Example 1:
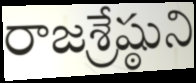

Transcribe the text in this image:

రాజశ్రేష్ఠుని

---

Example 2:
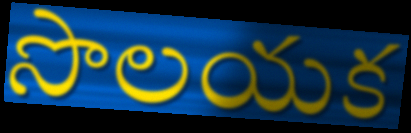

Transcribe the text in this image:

సొలయక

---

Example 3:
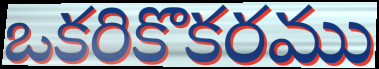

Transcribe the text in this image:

ఒకరికొకరము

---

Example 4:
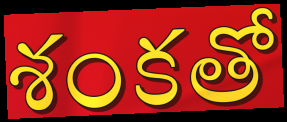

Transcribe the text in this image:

శంకతో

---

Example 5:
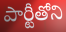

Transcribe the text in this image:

పార్టీతోని